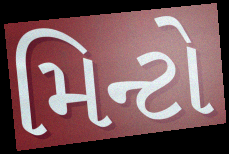
મિન્ટો